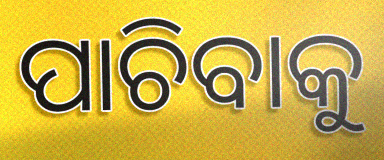
ପାଚିବାକୁ